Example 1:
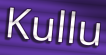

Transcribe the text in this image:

Kullu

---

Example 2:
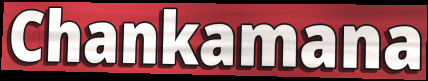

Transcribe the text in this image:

Chankamana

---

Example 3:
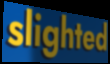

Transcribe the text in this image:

slighted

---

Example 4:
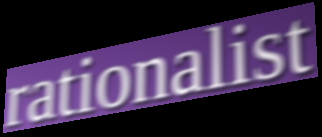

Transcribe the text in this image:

rationalist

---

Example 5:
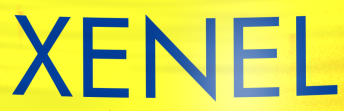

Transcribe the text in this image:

XENEL